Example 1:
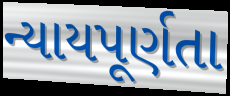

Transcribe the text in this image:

ન્યાયપૂર્ણતા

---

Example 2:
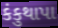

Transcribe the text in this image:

કંકુથાપા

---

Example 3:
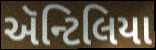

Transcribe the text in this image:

ઍન્ટિલિયા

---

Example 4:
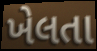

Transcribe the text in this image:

ખેલતા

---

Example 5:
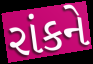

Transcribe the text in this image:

રાંકને